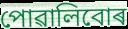
পোৱালিবোৰ